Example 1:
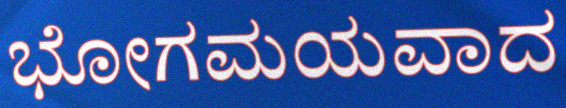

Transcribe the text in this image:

ಭೋಗಮಯವಾದ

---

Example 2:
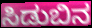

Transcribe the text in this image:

ಸಿಡುಬಿನ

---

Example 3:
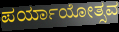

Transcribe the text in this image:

ಪರ್ಯಾಯೋತ್ಸವ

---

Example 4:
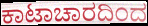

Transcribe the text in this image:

ಕಾಟಾಚಾರದಿಂದ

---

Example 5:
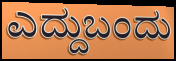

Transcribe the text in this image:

ಎದ್ದುಬಂದು